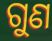
ଗୁଣ